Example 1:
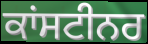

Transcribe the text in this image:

ਕਾਂਸਟੀਨਰ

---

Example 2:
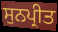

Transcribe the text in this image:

ਸੁਨਪ੍ਰੀਤ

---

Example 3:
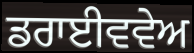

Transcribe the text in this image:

ਡਰਾਈਵਵੇਅ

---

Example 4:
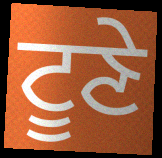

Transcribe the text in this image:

ਟੂਣੇ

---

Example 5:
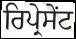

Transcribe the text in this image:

ਰਿਪ੍ਰੇਸੇੰਟ